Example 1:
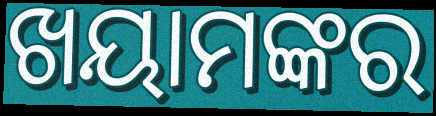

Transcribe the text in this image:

ଖୟାମଙ୍କର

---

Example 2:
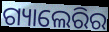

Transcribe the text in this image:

ଗ୍ୟାଲେରିର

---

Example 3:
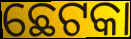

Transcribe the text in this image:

ଛେଟକା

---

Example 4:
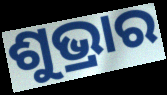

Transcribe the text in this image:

ଶୁଭ୍ରାର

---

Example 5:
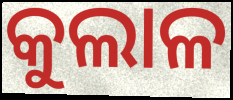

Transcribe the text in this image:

କୁଲାଳ